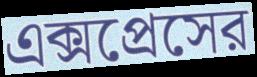
এক্সপ্রেসের